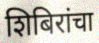
शिबिरांचा